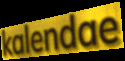
kalendae